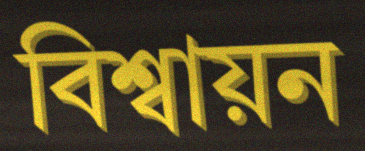
বিশ্বায়ন